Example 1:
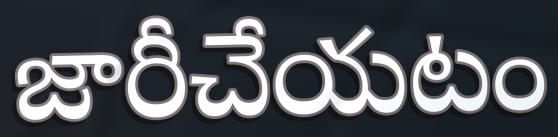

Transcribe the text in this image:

జారీచేయటం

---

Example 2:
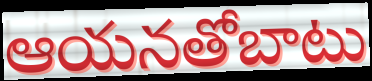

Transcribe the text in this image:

ఆయనతోబాటు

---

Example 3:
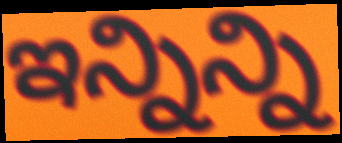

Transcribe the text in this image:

ఇన్నిన్ని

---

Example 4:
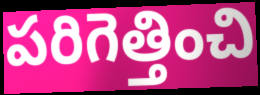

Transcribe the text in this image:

పరిగెత్తించి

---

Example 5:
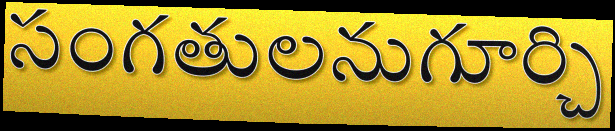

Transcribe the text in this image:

సంగతులనుగూర్చి